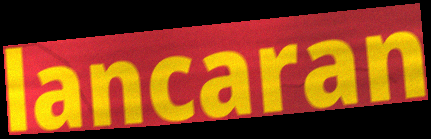
lancaran